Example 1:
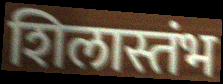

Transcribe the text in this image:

शिलास्तंभ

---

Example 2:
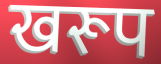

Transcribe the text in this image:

खरूप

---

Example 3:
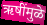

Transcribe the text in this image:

ऋषींमुळे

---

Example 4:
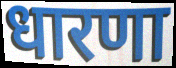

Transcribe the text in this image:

धारणा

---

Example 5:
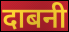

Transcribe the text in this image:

दाबनी